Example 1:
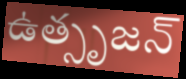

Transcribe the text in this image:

ఉత్సృజన్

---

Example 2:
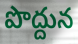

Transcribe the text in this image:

పొద్దున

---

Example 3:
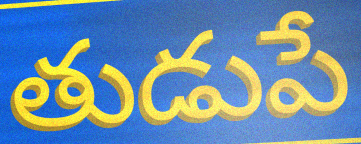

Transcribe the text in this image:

తుడుపే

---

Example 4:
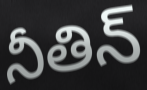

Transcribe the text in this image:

నీతిన్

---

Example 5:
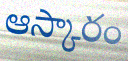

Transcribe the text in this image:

ఆస్కారం